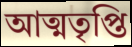
আত্মতৃপ্তি